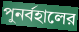
পুনর্বহালের